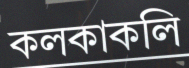
কলকাকলি